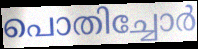
പൊതിച്ചോർ